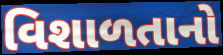
વિશાળતાનો